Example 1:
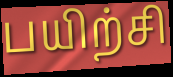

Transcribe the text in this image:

பயிற்சி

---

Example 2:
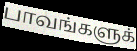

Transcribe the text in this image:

பாவங்களுக்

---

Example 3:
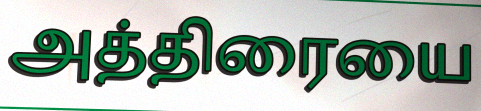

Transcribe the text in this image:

அத்திரையை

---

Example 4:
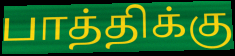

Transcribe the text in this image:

பாத்திக்கு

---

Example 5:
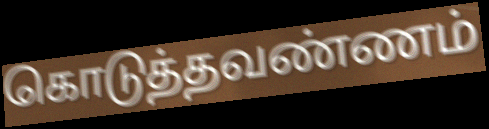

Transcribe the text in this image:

கொடுத்தவண்ணம்